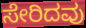
ಸೇರಿದವು